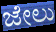
ಜೇಲು